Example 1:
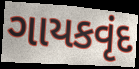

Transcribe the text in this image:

ગાયકવૃંદ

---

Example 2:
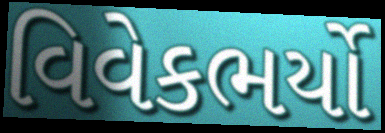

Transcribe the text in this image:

વિવેકભર્યો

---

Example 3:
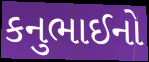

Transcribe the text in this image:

કનુભાઈનો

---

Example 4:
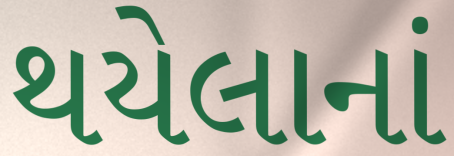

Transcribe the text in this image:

થયેલાનાં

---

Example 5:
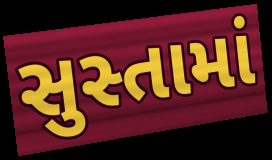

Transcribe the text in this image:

સુસ્તામાં